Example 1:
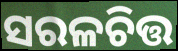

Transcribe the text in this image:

ସରଳଚିତ୍ତ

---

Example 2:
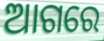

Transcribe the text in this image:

ଆଗରେ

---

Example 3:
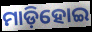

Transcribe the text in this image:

ମାଡ଼ିହୋଇ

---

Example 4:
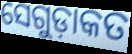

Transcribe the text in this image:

ସେଗୁଡ଼ାକତ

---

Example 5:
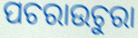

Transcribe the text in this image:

ପଚରାଉଚୁରା